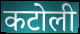
कटोली